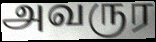
அவருர